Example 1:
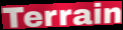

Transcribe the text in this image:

Terrain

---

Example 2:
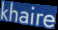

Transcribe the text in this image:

khaire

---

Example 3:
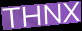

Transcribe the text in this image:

THNX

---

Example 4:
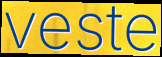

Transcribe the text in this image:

veste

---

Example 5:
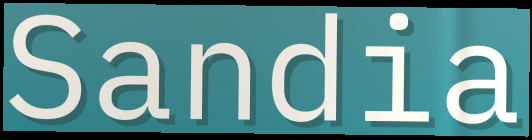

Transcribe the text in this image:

Sandia